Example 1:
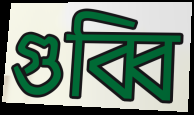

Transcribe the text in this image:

গুব্বি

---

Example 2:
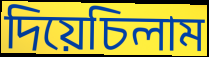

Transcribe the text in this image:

দিয়েচিলাম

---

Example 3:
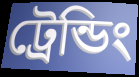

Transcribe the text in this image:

ট্রেন্ডিং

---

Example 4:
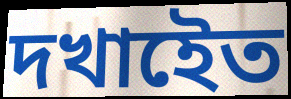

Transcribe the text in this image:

দখাইেত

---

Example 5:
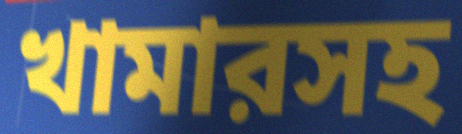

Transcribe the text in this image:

খামারসহ